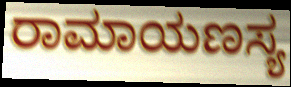
ರಾಮಾಯಣಸ್ಯ